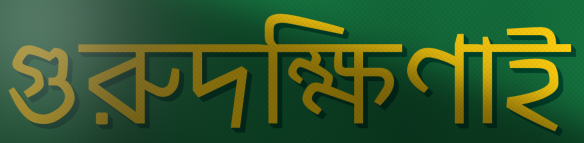
গুরুদক্ষিণাই